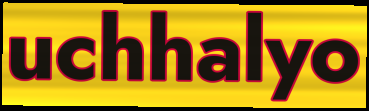
uchhalyo